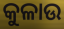
କୁଳାଉ